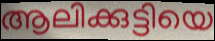
ആലിക്കുട്ടിയെ